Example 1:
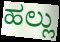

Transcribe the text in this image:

ಹಲ್ಲು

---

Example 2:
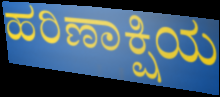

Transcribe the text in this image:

ಹರಿಣಾಕ್ಷಿಯ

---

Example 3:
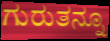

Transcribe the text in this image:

ಗುರುತನ್ನೂ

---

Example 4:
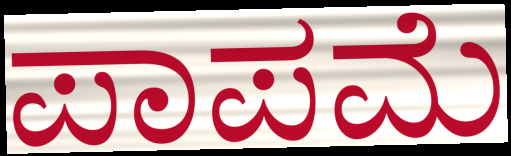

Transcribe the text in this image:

ಪಾಪಮೆ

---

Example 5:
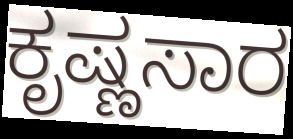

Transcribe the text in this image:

ಕೃಷ್ಣಸಾರ